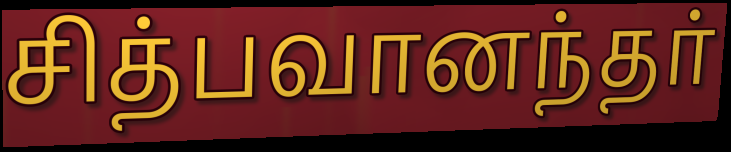
சித்பவானந்தர்